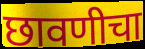
छावणीचा